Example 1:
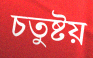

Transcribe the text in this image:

চতুষ্টয়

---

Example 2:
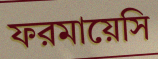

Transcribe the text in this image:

ফরমায়েসি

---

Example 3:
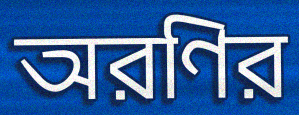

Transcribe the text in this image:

অরণির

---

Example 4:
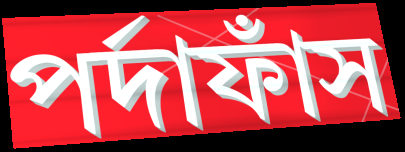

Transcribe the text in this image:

পর্দাফাঁস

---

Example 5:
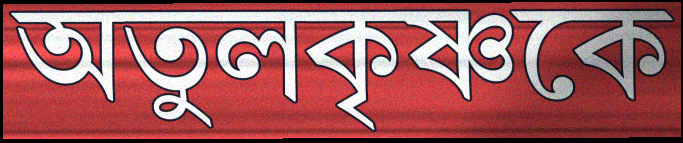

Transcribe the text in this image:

অতুলকৃষ্ণকে